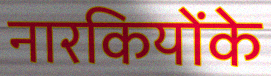
नारकियोंके